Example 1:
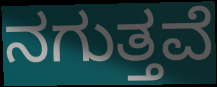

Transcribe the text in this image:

ನಗುತ್ತವೆ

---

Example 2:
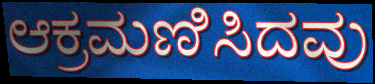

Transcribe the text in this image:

ಆಕ್ರಮಣಿಸಿದವು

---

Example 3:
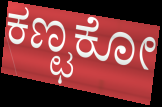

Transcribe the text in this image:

ಕಣ್ಟಕೋ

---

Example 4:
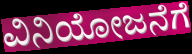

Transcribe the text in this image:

ವಿನಿಯೋಜನೆಗೆ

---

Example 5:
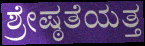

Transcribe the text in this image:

ಶ್ರೇಷ್ಠತೆಯತ್ತ